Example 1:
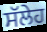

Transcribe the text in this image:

ਸੱਲੇਹ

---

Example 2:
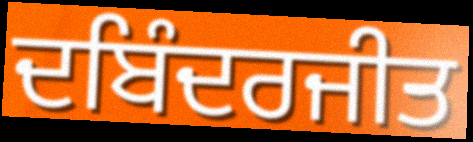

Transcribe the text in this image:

ਦਬਿੰਦਰਜੀਤ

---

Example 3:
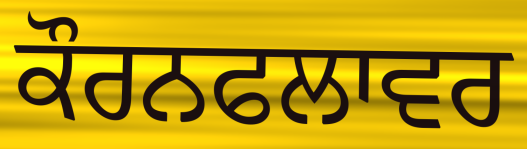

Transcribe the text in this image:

ਕੌਰਨਫਲਾਵਰ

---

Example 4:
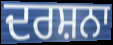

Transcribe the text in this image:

ਦਰਸ਼ਨਾ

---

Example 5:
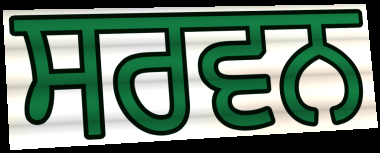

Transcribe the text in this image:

ਸਰਵਨ